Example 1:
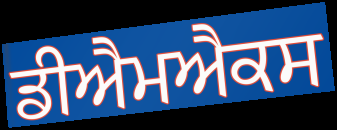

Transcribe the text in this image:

ਡੀਐਮਐਕਸ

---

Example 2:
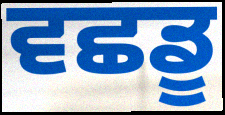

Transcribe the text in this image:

ਵਛਡੂ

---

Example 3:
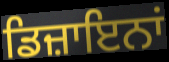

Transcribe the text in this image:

ਡਿਜ਼ਾਇਨਾਂ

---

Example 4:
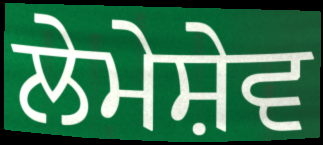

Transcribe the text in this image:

ਲੇਮੇਸ਼ੇਵ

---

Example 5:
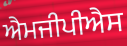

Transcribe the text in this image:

ਐਮਜੀਪੀਐਸ